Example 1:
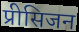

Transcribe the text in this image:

प्रीसिजन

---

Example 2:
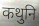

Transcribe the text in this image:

कथुनि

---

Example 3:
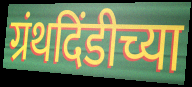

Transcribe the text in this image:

ग्रंथदिंडीच्या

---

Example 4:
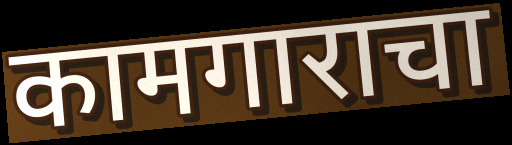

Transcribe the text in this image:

कामगाराचा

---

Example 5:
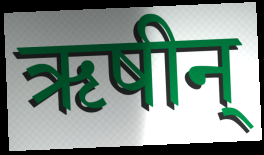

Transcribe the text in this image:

ऋषीन्